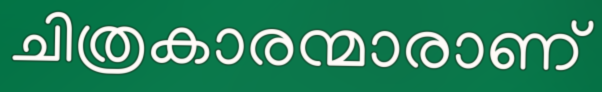
ചിത്രകാരന്മാരാണ്